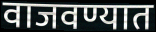
वाजवण्यात